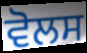
ਵੋਲਸ